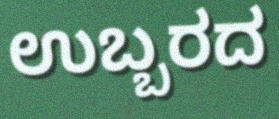
ಉಬ್ಬರದ